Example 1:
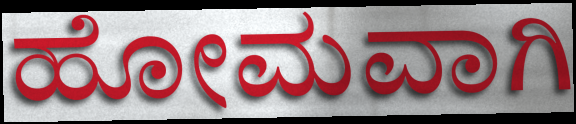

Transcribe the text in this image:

ಹೋಮವಾಗಿ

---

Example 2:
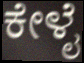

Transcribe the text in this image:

ಕೇಳೈ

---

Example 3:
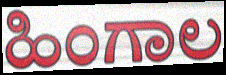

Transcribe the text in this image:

ಹಿಂಗಾಲ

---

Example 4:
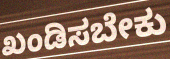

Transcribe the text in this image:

ಖಂಡಿಸಬೇಕು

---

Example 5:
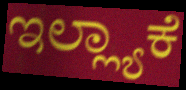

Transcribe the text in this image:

ಇಲ್ಲ್ಯಾಕೆ